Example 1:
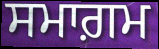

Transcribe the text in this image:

ਸਮਾਗ਼ਮ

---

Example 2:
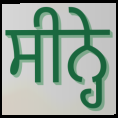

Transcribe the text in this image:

ਸੀਨ੍ਹੇ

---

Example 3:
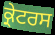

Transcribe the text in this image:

ਕ੍ਰੇਟਰਸ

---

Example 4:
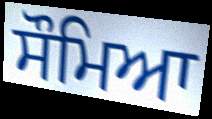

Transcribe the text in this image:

ਸੌਮਿਆ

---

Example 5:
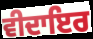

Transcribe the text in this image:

ਵੀਦਾਇਰ